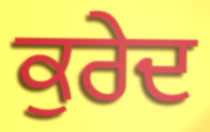
ਕੁਰੇਦ